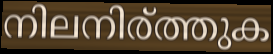
നിലനിര്ത്തുക